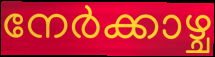
നേർക്കാഴ്ച